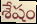
శేషం